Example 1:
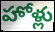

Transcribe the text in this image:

హోళ్లు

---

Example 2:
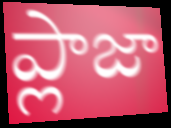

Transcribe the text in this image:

ప్లాజా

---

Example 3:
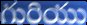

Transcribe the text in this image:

గురియు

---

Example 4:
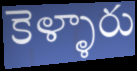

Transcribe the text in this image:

కెళ్ళారు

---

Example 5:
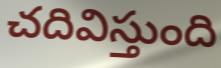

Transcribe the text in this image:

చదివిస్తుంది